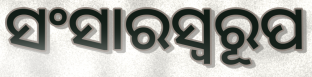
ସଂସାରସ୍ବରୂପ